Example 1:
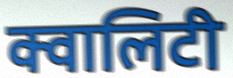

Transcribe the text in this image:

क्वालिटी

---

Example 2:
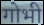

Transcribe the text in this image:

गोभी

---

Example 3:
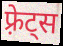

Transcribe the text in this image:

फ़्रेट्स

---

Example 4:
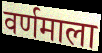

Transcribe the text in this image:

वर्णमाला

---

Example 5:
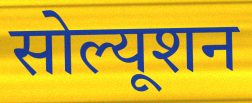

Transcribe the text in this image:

सोल्‍यूशन